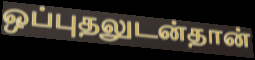
ஒப்புதலுடன்தான்